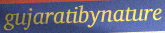
gujaratibynature